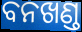
ବନଖଣ୍ଡ